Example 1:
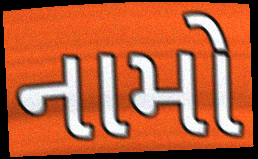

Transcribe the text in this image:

નામો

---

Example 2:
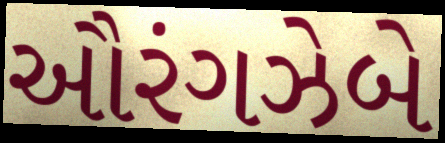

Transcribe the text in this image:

ઔરંગઝેબે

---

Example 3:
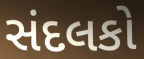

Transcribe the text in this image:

સંદલકો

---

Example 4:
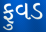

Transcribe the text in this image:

ફુવડ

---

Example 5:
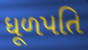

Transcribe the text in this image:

ધૂળપતિ